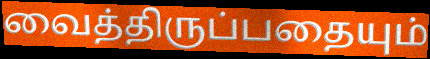
வைத்திருப்பதையும்